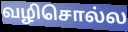
வழிசொல்ல